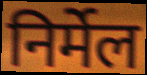
निर्मेल